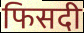
फिसदी